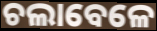
ଚଲାବେଳେ